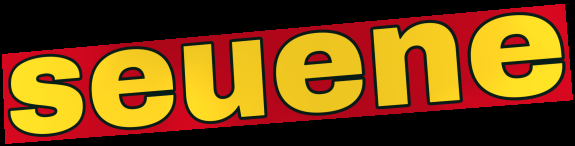
seuene